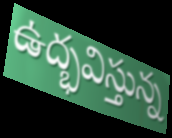
ఉద్భవిస్తున్న